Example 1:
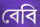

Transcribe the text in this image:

বেবি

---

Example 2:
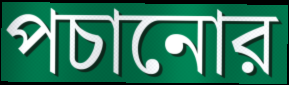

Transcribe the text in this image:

পচানোর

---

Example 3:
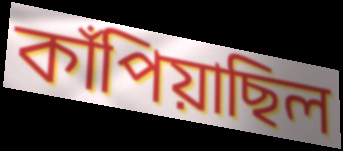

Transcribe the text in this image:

কাঁপিয়াছিল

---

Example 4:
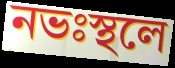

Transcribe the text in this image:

নভঃস্থলে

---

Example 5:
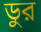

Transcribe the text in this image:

ডুর